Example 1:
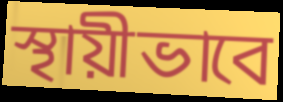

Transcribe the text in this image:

স্থায়ীভাবে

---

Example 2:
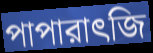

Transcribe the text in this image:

পাপারাৎজি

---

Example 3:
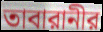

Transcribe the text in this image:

তাবারানীর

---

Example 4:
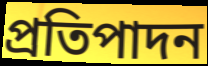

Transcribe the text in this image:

প্রতিপাদন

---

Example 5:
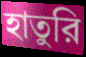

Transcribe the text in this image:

হাতুরি